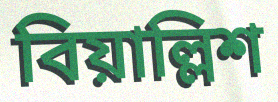
বিয়াল্লিশ